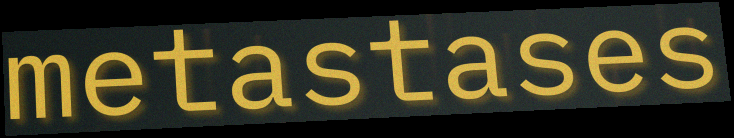
metastases